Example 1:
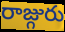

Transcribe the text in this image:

రాజ్గురు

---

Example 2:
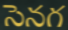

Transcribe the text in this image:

సెనగ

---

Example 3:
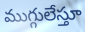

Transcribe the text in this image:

ముగ్గులేస్తూ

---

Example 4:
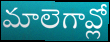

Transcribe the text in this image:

మాలెగావ్లో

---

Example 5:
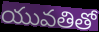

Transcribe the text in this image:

యువతితో